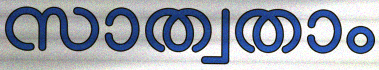
സാത്വതാം